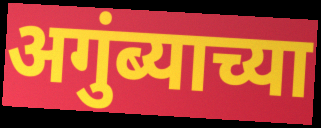
अगुंब्याच्या